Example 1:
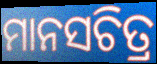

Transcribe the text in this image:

ମାନସଚିତ୍ର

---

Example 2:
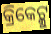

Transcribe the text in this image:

କ୍ରିକେଟ୍କୁ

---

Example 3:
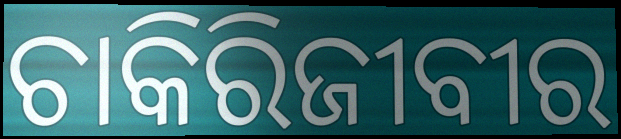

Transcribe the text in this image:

ଚାକିରିଜୀବୀର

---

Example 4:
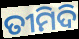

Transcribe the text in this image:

ତୀମିଦି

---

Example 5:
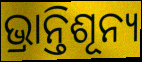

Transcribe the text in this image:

ଭ୍ରାନ୍ତିଶୂନ୍ୟ